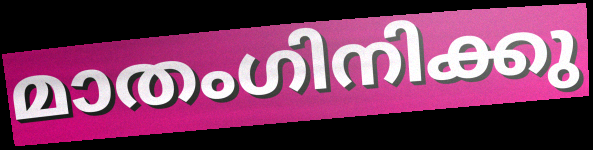
മാതംഗിനിക്കു